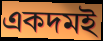
একদমই